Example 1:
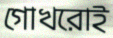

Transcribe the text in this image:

গোখরোই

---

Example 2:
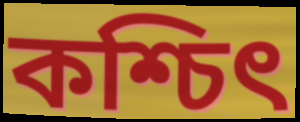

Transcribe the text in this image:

কশ্চিৎ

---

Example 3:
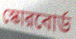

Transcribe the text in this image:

স্কোরবোর্ড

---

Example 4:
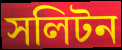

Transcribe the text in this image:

সলিটন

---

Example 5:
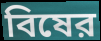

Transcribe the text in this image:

বিষের